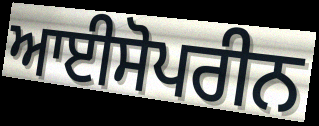
ਆਈਸੋਪਰੀਨ